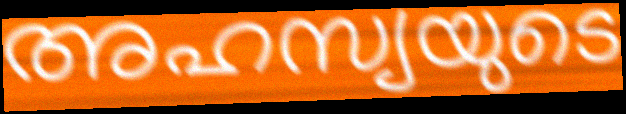
അഹസ്യയുടെ